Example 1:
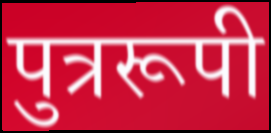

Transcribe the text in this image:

पुत्ररूपी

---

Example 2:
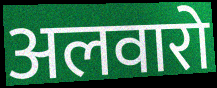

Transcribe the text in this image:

अलवारो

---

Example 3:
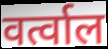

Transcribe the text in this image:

वर्त्वाल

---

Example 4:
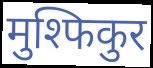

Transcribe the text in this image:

मुश्फिकुर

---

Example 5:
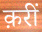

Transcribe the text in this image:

क़रीं